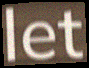
let